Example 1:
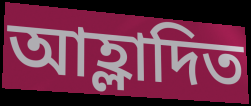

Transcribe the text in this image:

আহ্লাদিত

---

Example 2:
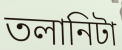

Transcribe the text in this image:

তলানিটা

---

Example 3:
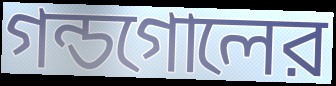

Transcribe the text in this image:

গন্ডগোলের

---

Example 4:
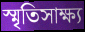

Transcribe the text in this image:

স্মৃতিসাক্ষ্য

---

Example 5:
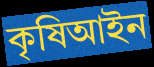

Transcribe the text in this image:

কৃষিআইন